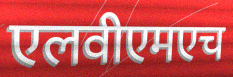
एलवीएमएच